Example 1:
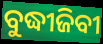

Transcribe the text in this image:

ବୁଦ୍ଧୀଜିବୀ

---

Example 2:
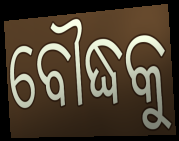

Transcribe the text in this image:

ବୌଦ୍ଧକୁ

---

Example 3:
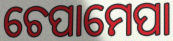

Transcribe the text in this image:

ଚେପାମେପା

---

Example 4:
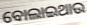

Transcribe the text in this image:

ବୋଲାଇଥାଉ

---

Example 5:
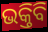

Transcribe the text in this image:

ଭକ୍ତିବି